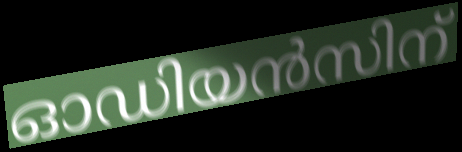
ഓഡിയൻസിന്